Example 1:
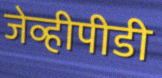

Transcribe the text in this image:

जेव्हीपीडी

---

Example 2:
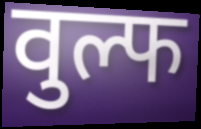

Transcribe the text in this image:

वुल्फ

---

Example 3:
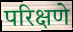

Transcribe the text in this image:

परिक्षणे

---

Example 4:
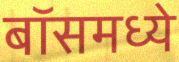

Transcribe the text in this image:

बॉसमध्ये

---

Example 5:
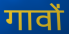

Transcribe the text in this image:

गावो॑